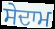
ਸੇਦਾਮ